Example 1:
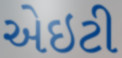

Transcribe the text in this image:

એઇટી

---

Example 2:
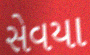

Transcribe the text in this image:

સેવયા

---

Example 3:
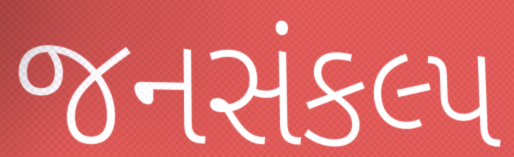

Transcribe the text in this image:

જનસંકલ્પ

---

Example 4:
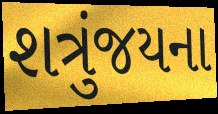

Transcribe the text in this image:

શત્રુંજયના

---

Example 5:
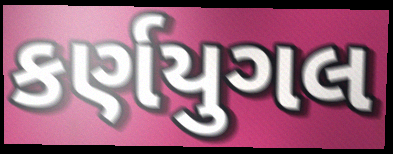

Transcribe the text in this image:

કર્ણયુગલ